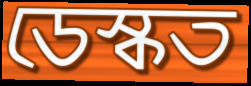
ডেস্কত